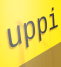
uppi